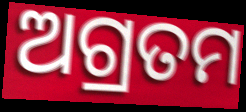
ଅଗ୍ରତମ